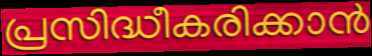
പ്രസിദ്ധീകരിക്കാൻ